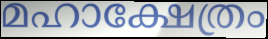
മഹാക്ഷേത്രം